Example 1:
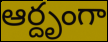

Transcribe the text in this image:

ఆర్దృంగా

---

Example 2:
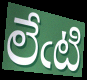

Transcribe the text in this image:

లేఁటి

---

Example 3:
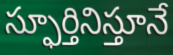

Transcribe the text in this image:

స్ఫూర్తినిస్తూనే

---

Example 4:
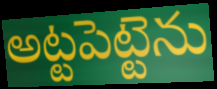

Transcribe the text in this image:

అట్టపెట్టెను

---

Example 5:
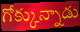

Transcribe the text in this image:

గోక్కున్నాడు